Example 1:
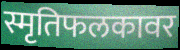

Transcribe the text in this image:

स्मृतिफलकावर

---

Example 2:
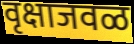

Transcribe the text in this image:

वृक्षाजवळ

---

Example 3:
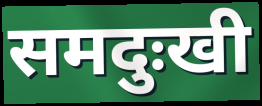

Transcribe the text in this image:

समदुःखी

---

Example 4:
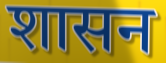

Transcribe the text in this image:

शासन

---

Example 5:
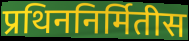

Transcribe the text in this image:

प्रथिननिर्मितीस